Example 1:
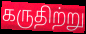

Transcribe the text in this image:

கருதிற்று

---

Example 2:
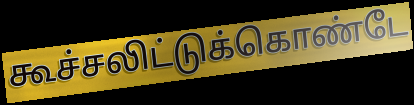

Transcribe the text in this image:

கூச்சலிட்டுக்கொண்டே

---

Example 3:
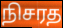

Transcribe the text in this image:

நிசரத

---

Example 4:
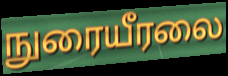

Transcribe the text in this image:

நுரையீரலை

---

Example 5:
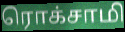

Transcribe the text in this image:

ரொக்சாமி